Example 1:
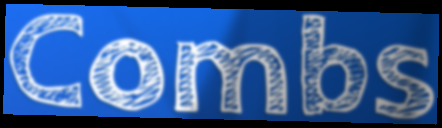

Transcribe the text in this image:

Combs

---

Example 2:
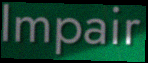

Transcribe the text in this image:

Impair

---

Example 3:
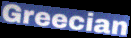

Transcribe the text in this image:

Greecian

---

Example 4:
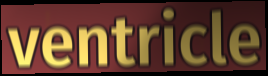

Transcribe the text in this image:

ventricle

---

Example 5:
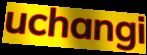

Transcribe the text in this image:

uchangi